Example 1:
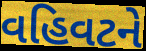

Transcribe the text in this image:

વહિવટને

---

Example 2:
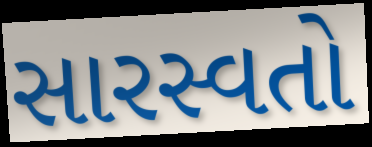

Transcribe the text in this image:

સારસ્વતો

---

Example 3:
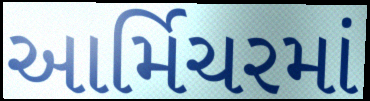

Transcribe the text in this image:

આર્મિચરમાં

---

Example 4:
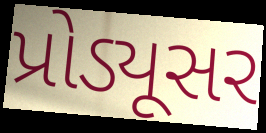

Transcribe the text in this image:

પ્રોડ્યૂસર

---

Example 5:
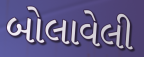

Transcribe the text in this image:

બોલાવેલી